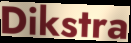
Dikstra